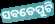
ସବଡେପୁଟି